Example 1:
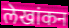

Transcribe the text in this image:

लेखांकन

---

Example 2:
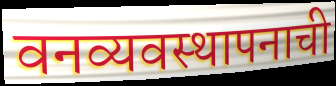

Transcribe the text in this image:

वनव्यवस्थापनाची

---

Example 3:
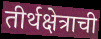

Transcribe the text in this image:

तीर्थक्षेत्राची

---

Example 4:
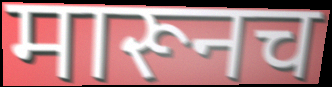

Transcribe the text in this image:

मारूनच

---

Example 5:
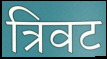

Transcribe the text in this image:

त्रिवट